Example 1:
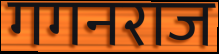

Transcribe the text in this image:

गगनराज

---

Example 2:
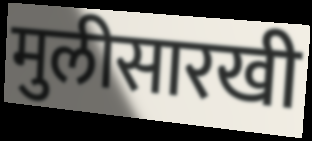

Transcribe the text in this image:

मुलीसारखी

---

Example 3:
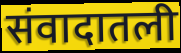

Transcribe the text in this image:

संवादातली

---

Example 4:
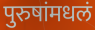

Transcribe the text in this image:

पुरुषांमधलं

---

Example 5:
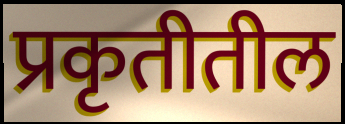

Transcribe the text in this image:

प्रकृतीतील